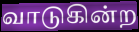
வாடுகின்ற